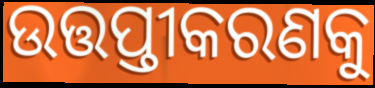
ଉତ୍ତପ୍ତୀକରଣକୁ